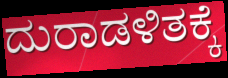
ದುರಾಡಳಿತಕ್ಕೆ